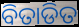
ବିତାଡିତ